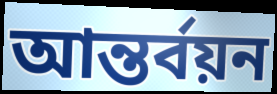
আন্তর্বয়ন